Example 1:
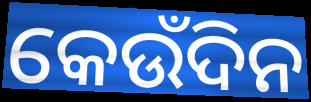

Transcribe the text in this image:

କେଉଁଦିନ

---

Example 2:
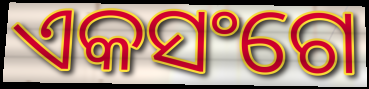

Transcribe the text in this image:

ଏକସଂଗେ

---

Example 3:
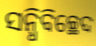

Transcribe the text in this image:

ସନ୍ଧିବିଚ୍ଛେଦ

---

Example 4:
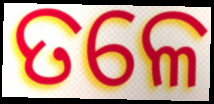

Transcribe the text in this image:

ତଳେ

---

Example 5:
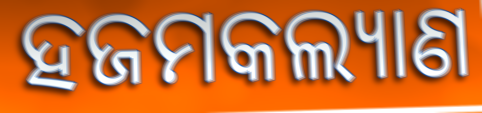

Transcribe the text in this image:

ହଜମକଲ୍ୟାଣ